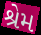
શ્રેમ